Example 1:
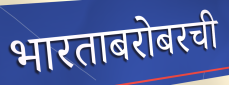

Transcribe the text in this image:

भारताबरोबरची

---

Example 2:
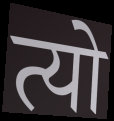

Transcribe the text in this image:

त्यो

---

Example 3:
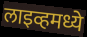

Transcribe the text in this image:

लाइव्हमध्ये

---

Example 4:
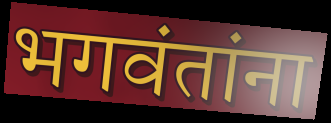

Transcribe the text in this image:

भगवंतांना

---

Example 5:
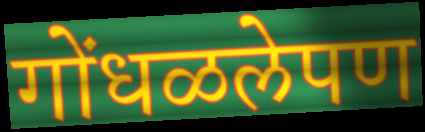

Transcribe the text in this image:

गोंधळलेपण